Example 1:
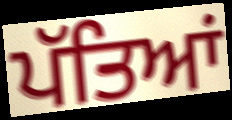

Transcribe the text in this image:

ਪੱਤਿਆਂ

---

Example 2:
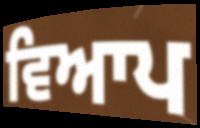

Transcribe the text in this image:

ਵਿਆਪ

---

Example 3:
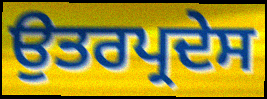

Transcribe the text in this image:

ਉਤਰਪ੍ਰਦੇਸ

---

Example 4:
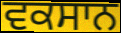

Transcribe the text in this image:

ਵਕਸਾਨ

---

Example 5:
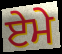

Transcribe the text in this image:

ਏਮੇ